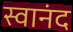
स्वानंद